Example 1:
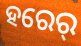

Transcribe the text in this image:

ହରେର୍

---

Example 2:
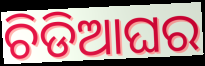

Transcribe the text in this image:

ଚିଡିଆଘର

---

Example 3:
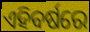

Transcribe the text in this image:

ଏହିବର୍ଷରେ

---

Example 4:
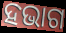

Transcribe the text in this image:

ହଭାଗ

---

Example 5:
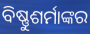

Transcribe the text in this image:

ବିଷ୍ଣୁଶର୍ମାଙ୍କର